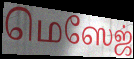
மெஸேஜ்